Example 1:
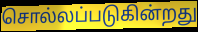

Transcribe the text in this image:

சொல்லப்படுகின்றது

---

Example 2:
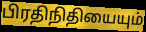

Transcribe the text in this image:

பிரதிநிதியையும்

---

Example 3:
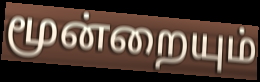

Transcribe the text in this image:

மூன்றையும்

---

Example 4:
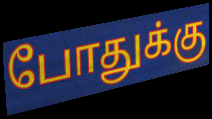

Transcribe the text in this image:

போதுக்கு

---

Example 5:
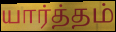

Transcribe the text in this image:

யார்த்தம்